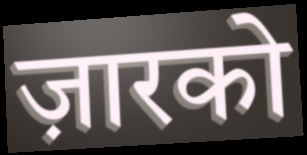
ज़ारको